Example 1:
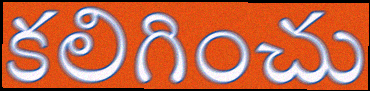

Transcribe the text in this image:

కలిగించు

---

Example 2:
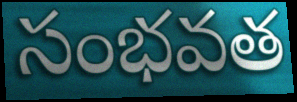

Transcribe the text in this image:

సంభవత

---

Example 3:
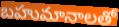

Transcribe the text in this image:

బహుమానాలతో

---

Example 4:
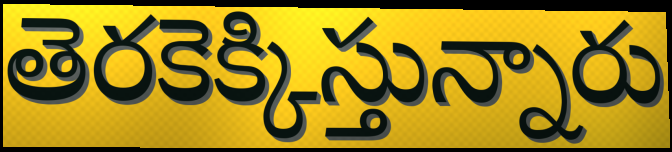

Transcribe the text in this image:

తెరకెక్కిస్తున్నారు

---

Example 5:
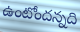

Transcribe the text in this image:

ఉంటోందన్నది